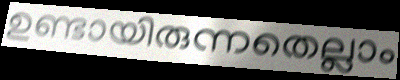
ഉണ്ടായിരുന്നതെല്ലാം